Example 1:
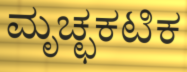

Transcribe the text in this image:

ಮೃಚ್ಛಕಟಿಕ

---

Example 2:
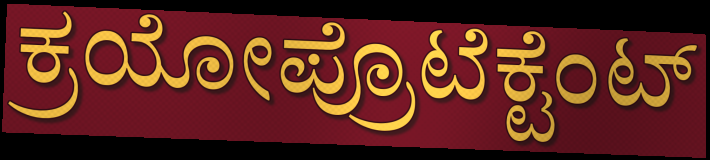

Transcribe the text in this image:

ಕ್ರಯೋಪ್ರೊಟೆಕ್ಟೆಂಟ್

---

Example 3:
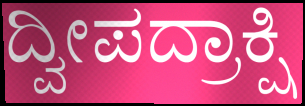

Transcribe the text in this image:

ದ್ವೀಪದ್ರಾಕ್ಷಿ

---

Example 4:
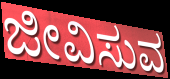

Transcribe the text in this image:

ಜೀವಿಸುವ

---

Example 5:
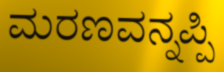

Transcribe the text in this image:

ಮರಣವನ್ನಪ್ಪಿ